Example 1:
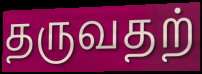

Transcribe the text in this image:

தருவதற்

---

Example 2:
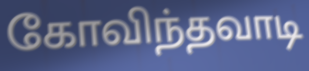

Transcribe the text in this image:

கோவிந்தவாடி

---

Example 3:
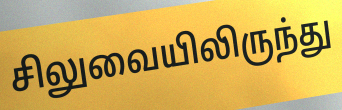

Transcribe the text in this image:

சிலுவையிலிருந்து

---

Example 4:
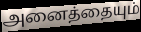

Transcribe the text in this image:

அனைத்தையும்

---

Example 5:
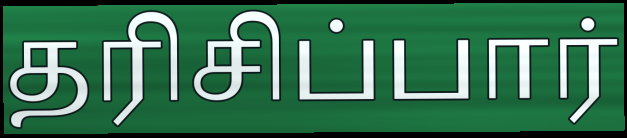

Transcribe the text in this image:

தரிசிப்பார்